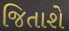
જિતાશે